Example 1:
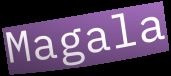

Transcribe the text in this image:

Magala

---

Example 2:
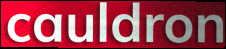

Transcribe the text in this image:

cauldron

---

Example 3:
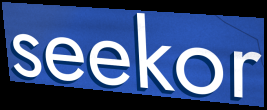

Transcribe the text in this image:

seekor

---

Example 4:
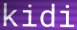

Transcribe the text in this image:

kidi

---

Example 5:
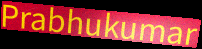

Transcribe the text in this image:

Prabhukumar